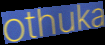
othuka